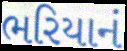
ભરિયાનં